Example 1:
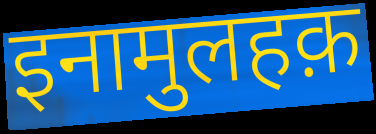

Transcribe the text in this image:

इनामुलहक़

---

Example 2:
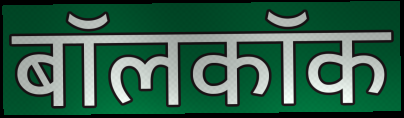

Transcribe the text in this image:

बॉलकॉक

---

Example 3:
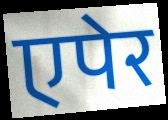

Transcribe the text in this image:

एपेर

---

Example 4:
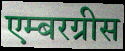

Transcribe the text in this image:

एम्बरग्रीस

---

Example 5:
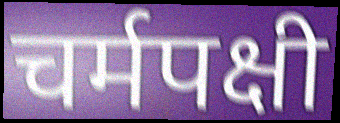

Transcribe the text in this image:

चर्मपक्षी